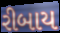
રીબાય